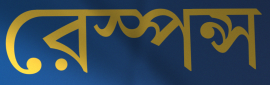
রেস্পন্স